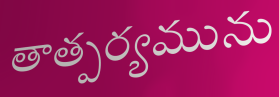
తాత్పర్యమును